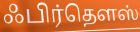
ஃபிர்தௌஸ்